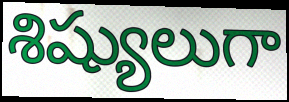
శిష్యులుగా